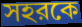
সহরকে